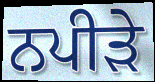
ਨਪੀੜੇ